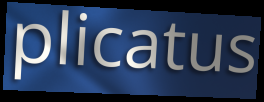
plicatus